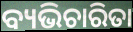
ବ୍ୟଭିଚାରିତା